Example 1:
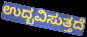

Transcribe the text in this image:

ಉದ್ಬವಿಸುತ್ತದೆ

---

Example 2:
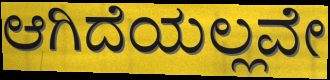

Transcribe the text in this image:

ಆಗಿದೆಯಲ್ಲವೇ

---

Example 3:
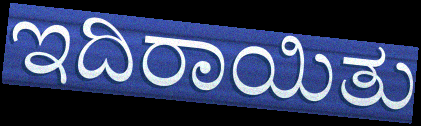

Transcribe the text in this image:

ಇದಿರಾಯಿತು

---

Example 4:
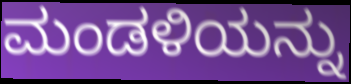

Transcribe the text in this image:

ಮಂಡಳಿಯನ್ನು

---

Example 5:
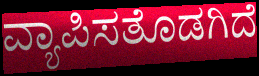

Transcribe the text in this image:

ವ್ಯಾಪಿಸತೊಡಗಿದೆ